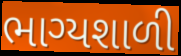
ભાગ્યશાળી